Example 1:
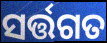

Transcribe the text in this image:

ସର୍ତ୍ତଗତ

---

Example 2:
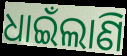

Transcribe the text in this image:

ଧାଇଁଲାଣି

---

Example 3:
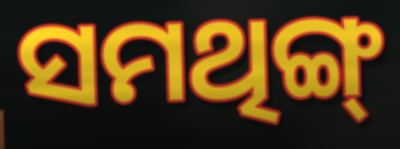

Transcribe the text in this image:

ସମଥିଙ୍ଗ୍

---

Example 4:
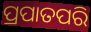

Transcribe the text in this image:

ପ୍ରପାତପରି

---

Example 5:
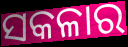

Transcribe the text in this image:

ସକଳାର